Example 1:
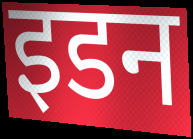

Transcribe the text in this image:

इडन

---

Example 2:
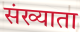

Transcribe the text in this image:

संख्याता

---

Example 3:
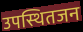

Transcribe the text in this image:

उपस्थितजन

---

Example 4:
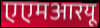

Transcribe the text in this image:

एएमआरयू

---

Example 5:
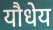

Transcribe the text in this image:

यौधेय